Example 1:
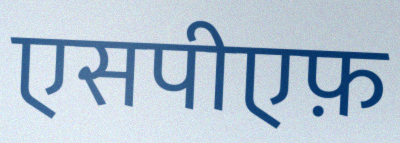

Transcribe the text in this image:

एसपीएफ़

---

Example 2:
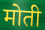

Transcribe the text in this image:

मोती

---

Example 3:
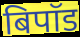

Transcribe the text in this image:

बिपॉड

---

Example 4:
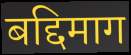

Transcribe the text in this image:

बद्दिमाग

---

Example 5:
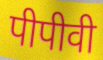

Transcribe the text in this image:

पीपीवी